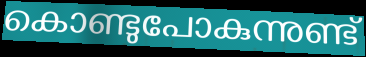
കൊണ്ടുപോകുന്നുണ്ട്